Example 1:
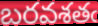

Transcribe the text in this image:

బరవశతఁ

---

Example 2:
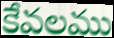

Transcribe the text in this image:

కేవలము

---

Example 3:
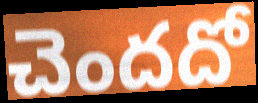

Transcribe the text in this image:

చెందదో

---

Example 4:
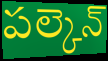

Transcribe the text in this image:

పల్కెన్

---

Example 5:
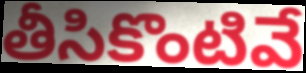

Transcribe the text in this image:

తీసికొంటివే